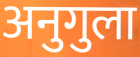
अनुगुला